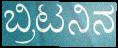
ಬ್ರಿಟನಿನ